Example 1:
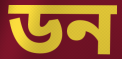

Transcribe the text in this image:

ডন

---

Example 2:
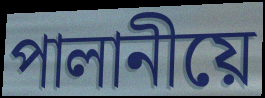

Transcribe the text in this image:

পালানীয়ে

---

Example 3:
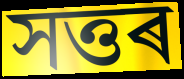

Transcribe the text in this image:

সত্তৰ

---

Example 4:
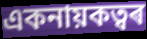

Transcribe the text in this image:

একনায়কত্বৰ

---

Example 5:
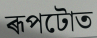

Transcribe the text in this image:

ৰূপটোত